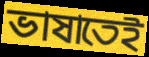
ভাষাতেই